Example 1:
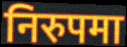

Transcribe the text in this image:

निरुपमा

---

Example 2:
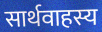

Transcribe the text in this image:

सार्थवाहस्य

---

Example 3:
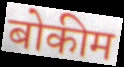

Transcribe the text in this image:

बोकीम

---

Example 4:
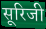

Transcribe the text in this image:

सूरिजी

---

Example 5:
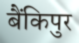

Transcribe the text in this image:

बैंकिपुर